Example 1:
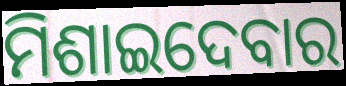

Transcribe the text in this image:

ମିଶାଇଦେବାର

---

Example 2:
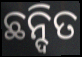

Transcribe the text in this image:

ଛନ୍ଦିତ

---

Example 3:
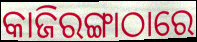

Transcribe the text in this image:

କାଜିରଙ୍ଗାଠାରେ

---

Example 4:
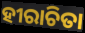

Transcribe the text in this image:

ହୀରାଚିତା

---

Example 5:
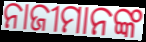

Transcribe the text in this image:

ନାଜୀମାନଙ୍କ